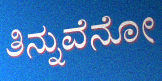
ತಿನ್ನುವೆನೋ